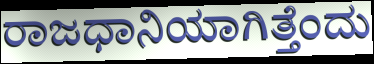
ರಾಜಧಾನಿಯಾಗಿತ್ತೆಂದು